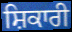
ਸ਼ਿਕਾਰੀ